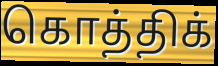
கொத்திக்